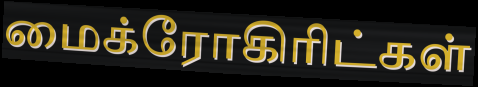
மைக்ரோகிரிட்கள்